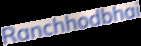
Ranchhodbhai